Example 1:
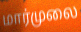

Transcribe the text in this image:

மார்முலை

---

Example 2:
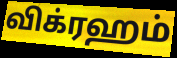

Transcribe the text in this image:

விக்ரஹம்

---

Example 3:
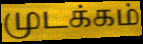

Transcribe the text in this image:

முடக்கம்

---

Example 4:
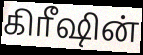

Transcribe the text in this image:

கிரீஷின்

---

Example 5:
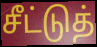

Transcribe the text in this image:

சீட்டுத்